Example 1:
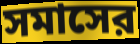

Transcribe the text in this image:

সমাসের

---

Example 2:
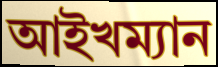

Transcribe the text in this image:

আইখম্যান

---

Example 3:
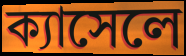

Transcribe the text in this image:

ক্যাসেলে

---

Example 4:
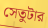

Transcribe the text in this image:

সেতুটার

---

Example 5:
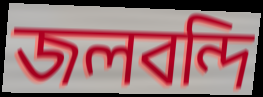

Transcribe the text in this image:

জলবন্দি